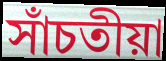
সাঁচতীয়া